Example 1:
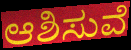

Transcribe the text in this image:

ಆಶಿಸುವೆ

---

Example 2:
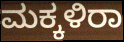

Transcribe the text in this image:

ಮಕ್ಕಳಿರಾ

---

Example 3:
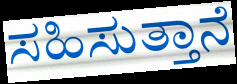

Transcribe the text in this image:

ಸಹಿಸುತ್ತಾನೆ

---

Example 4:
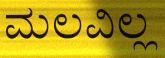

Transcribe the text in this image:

ಮಲವಿಲ್ಲ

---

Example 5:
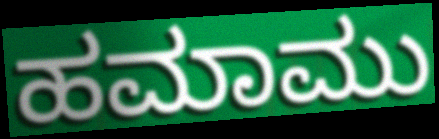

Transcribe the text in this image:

ಹಮಾಮು